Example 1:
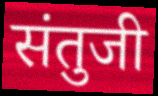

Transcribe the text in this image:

संतुजी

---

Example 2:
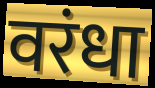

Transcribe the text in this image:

वरंधा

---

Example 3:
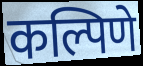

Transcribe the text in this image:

कल्पिणे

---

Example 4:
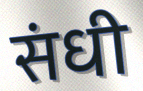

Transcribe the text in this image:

संधी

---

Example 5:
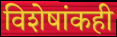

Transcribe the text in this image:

विशेषांकही